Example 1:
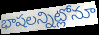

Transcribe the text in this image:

భాషలన్నిట్లోనూ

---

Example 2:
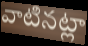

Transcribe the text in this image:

వాటినట్లా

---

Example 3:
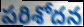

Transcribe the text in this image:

పరిశోదన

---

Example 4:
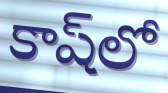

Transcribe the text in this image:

కాష్‌లో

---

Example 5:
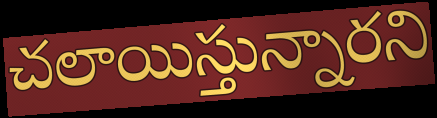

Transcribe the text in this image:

చలాయిస్తున్నారని